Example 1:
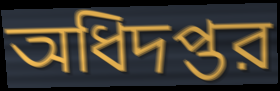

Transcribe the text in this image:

অধিদপ্তর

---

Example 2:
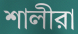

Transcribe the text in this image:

শালীরা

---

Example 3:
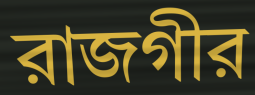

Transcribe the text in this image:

রাজগীর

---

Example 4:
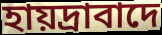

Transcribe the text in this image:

হায়দ্রাবাদে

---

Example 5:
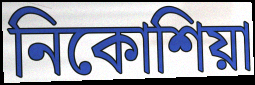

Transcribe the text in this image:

নিকোশিয়া